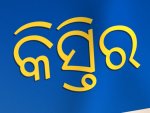
କିସ୍ତିର